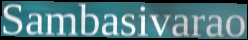
Sambasivarao